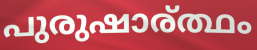
പുരുഷാര്ത്ഥം